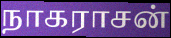
நாகராசன்